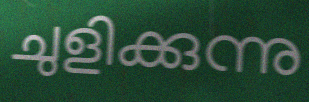
ചുളിക്കുന്നു